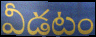
వీడటం